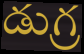
డుగ్ర